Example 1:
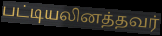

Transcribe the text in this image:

பட்டியலினத்தவர்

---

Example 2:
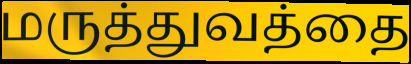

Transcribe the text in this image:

மருத்துவத்தை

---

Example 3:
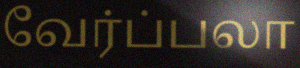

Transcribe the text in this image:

வேர்ப்பலா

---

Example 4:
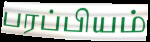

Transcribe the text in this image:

பரப்பியம்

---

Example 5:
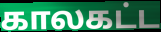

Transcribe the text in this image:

காலகட்ட